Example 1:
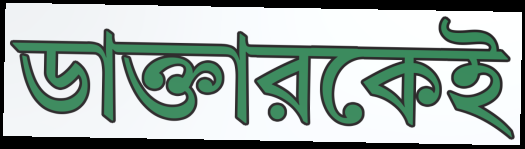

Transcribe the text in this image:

ডাক্তারকেই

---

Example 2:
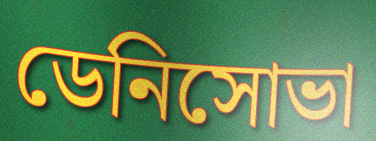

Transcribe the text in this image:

ডেনিসোভা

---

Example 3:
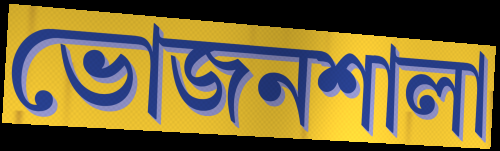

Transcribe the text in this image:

ভোজনশালা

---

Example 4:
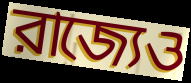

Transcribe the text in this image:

রাজ্যেও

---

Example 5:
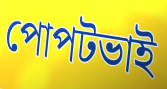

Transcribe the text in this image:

পোপটভাই